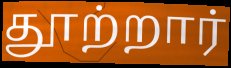
தூற்றார்